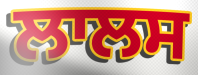
ਲਾਲਸ